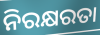
ନିରକ୍ଷରତା